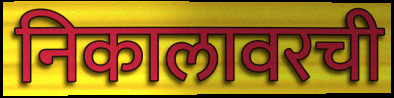
निकालावरची